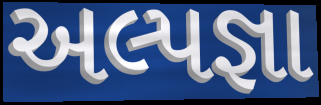
અલ્પજ્ઞા